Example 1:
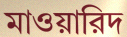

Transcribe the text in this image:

মাওয়ারিদ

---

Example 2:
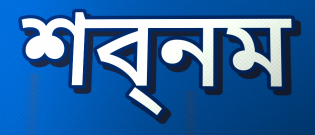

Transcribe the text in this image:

শব্নম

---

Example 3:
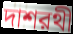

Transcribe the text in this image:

দাশরথী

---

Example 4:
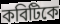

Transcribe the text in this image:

কবিটিকে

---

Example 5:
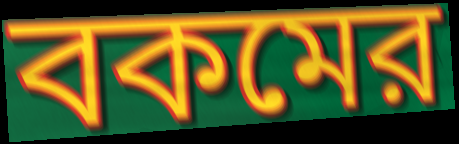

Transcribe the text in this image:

বকমের